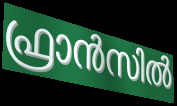
ഫ്രാൻസിൽ